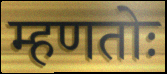
म्हणतोः